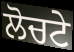
ਲੋਚਟੇ